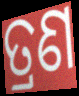
ତ୍ରଣ